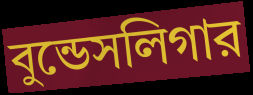
বুন্ডেসলিগার